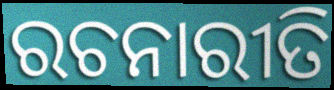
ରଚନାରୀତି